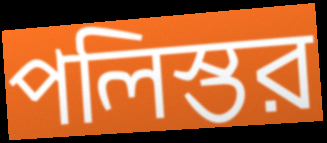
পলিস্তর